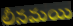
లీనమయి